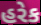
હરેક